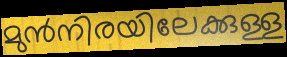
മുൻനിരയിലേക്കുള്ള